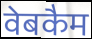
वेबकैम